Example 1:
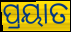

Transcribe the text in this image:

ପ୍ରୟାତ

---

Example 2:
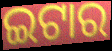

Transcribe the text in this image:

ଇଟାର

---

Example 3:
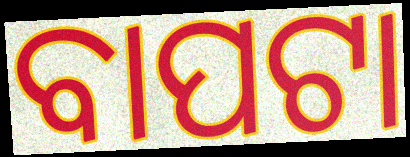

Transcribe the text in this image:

ବାପଟା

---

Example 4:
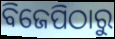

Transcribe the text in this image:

ବିଜେପିଠାରୁ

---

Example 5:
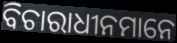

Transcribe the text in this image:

ବିଚାରାଧୀନମାନେ